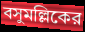
বসুমল্লিকের